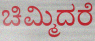
ಚಿಮ್ಮಿದರೆ